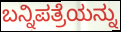
ಬನ್ನಿಪತ್ರೆಯನ್ನು